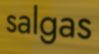
salgas